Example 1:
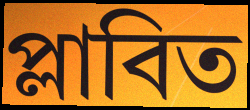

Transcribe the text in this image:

প্লাবিত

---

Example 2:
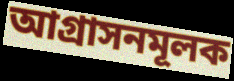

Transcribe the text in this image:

আগ্রাসনমূলক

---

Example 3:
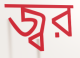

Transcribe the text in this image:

জ্বর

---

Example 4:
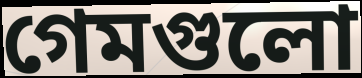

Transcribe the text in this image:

গেমগুলো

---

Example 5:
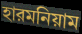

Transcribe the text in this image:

হারমনিয়াম